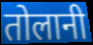
तोलानी